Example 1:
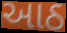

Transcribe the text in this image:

આઠ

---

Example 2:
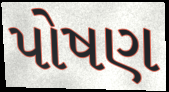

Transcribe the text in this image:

પોષણ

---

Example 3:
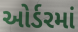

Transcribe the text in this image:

ઓર્ડરમાં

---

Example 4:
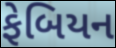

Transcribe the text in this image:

ફેબિયન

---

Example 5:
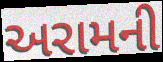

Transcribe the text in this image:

અરામની